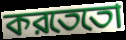
করতেতো